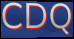
CDQ